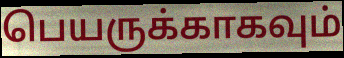
பெயருக்காகவும்